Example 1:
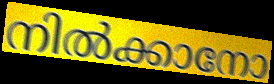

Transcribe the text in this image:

നിൽക്കാനോ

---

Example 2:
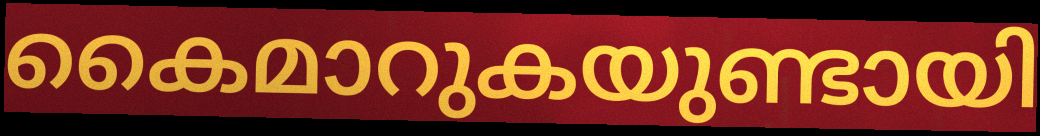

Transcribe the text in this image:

കൈമാറുകയുണ്ടായി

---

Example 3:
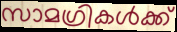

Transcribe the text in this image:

സാമഗ്രികൾക്ക്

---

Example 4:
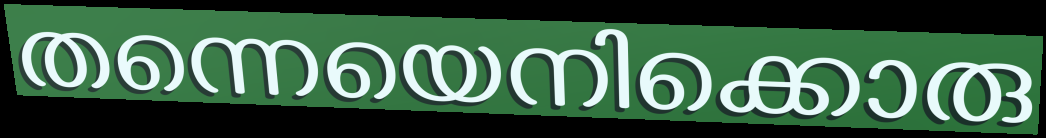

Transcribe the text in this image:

തന്നെയെനിക്കൊരു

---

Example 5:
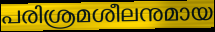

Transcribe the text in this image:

പരിശ്രമശീലനുമായ